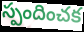
స్పందించక